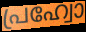
പ്രഹ്വോ